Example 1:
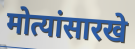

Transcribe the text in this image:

मोत्यांसारखे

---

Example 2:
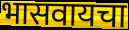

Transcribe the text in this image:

भासवायचा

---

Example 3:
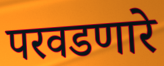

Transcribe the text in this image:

परवडणारे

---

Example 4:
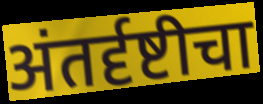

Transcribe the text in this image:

अंतर्दृष्टीचा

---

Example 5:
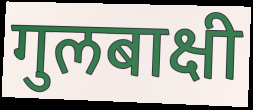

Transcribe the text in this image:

गुलबाक्षी